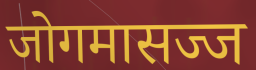
जोगमासज्ज